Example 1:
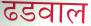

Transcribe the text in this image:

ढडवाल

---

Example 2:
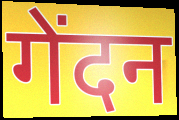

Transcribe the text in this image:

गेंदन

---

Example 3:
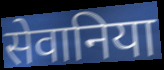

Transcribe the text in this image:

सेवानिया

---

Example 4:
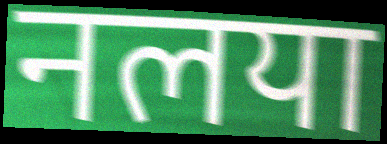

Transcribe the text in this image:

नलया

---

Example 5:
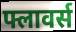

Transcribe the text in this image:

फ्लावर्स